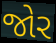
જોર